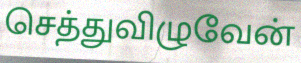
செத்துவிழுவேன்